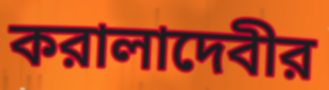
করালাদেবীর